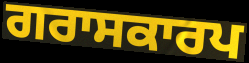
ਗਰਾਸਕਾਰਪ